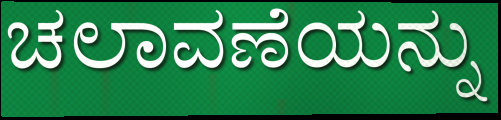
ಚಲಾವಣೆಯನ್ನು